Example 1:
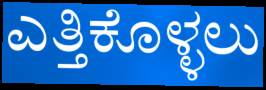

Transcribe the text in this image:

ಎತ್ತಿಕೊಳ್ಳಲು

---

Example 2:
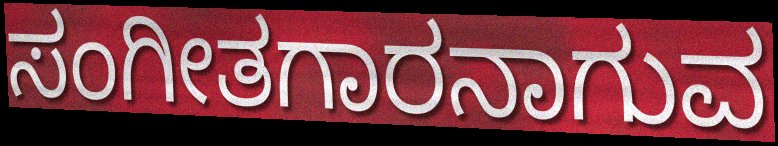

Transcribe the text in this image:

ಸಂಗೀತಗಾರನಾಗುವ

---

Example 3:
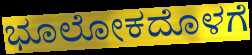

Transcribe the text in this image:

ಭೂಲೋಕದೊಳಗೆ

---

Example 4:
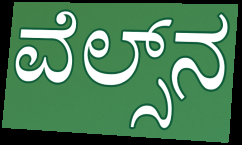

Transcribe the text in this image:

ವೆಲ್ಸ್‌ನ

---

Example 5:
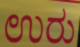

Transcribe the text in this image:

ಉರು